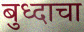
बुध्दाचा